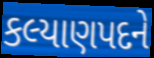
કલ્યાણપદને